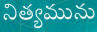
నిత్యమును